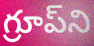
గ్రూప్‌ని